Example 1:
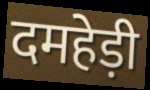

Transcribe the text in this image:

दमहेड़ी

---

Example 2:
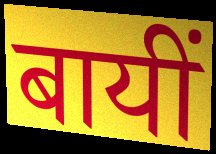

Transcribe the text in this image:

बायीं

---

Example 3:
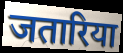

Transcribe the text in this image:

जतारिया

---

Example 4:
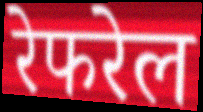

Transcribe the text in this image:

रेफरेल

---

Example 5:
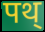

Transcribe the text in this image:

पथ्